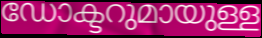
ഡോക്ടറുമായുള്ള